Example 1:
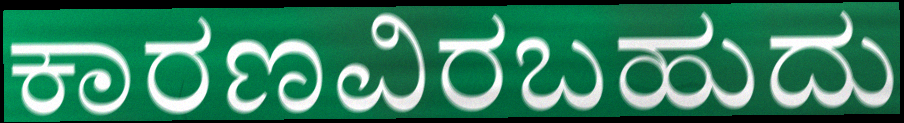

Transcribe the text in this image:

ಕಾರಣವಿರಬಹುದು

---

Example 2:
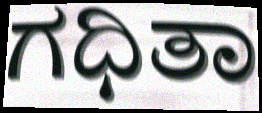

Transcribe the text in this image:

ಗಧಿತಾ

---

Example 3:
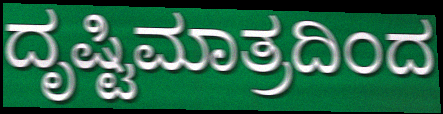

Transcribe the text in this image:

ದೃಷ್ಟಿಮಾತ್ರದಿಂದ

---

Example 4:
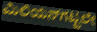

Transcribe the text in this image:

ಮಿಲಿಯನ್‌ಗಟ್ಟಲೇ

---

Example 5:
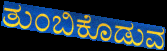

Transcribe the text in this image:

ತುಂಬಿಕೊಡುವ